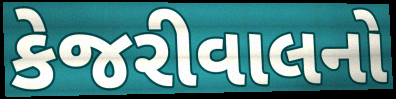
કેજરીવાલનો